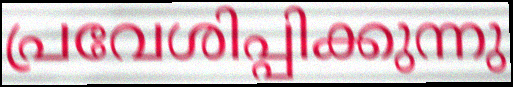
പ്രവേശിപ്പിക്കുന്നു